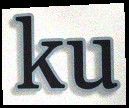
ku